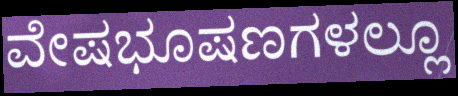
ವೇಷಭೂಷಣಗಳಲ್ಲೂ